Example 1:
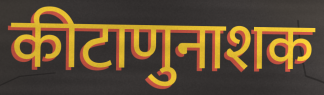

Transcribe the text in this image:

कीटाणुनाशक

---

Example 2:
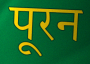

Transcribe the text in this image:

पूरन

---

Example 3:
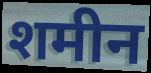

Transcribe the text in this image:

शमीन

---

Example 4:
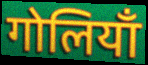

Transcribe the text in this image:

गोलियाँ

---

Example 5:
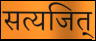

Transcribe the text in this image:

सत्यजित्